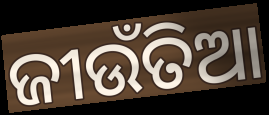
ଜୀଉଁତିଆ